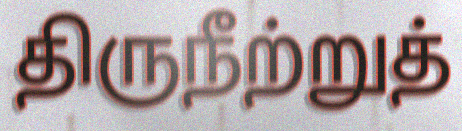
திருநீற்றுத்